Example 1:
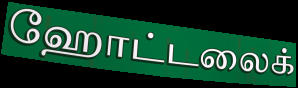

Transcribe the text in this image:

ஹோட்டலைக்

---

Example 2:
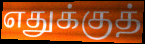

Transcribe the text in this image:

எதுக்குத்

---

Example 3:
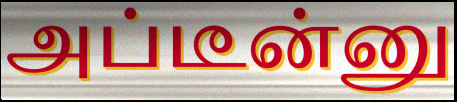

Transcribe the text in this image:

அப்டீன்னு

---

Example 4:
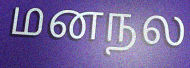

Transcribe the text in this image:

மனநல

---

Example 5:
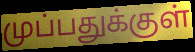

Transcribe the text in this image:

முப்பதுக்குள்